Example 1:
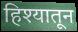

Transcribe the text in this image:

हिश्यातून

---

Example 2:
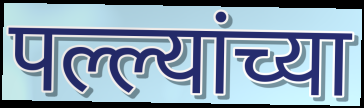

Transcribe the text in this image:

पल्ल्यांच्या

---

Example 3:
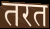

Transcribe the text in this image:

तरत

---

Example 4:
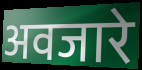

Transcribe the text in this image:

अवजारे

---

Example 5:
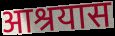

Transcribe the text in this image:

आश्रयास